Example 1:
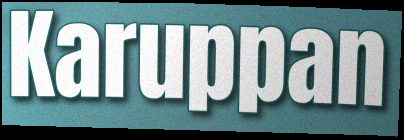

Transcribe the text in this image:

Karuppan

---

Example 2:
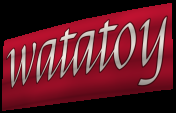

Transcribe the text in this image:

watatoy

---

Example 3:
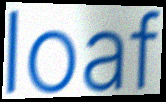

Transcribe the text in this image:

loaf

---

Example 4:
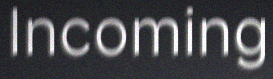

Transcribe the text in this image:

Incoming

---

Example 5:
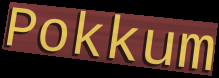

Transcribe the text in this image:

Pokkum